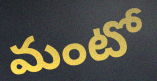
మంటో